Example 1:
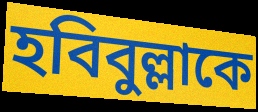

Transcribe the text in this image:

হবিবুল্লাকে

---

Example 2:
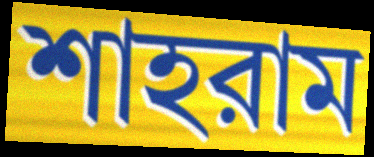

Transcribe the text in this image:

শাহরাম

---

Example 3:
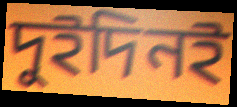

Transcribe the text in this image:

দুইদিনই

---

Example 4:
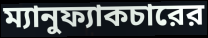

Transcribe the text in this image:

ম্যানুফ্যাকচারের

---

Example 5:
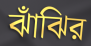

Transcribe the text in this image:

ঝাঁঝির